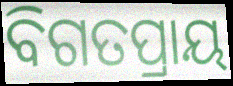
ବିଗତପ୍ରାୟ